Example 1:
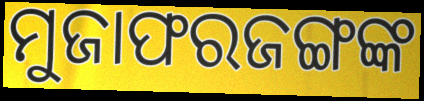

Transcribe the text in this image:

ମୁଜାଫରଜଙ୍ଗଙ୍କ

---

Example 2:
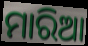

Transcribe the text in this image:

ମାରିଆ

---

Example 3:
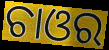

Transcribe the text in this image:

ଚାଓର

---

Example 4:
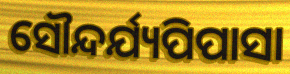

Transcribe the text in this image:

ସୌନ୍ଦର୍ଯ୍ୟପିପାସା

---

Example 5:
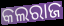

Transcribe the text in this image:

କଲରାଜ